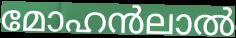
മോഹൻലാൽ